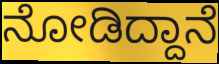
ನೋಡಿದ್ದಾನೆ